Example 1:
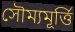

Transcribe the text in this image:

সৌম্যমূর্ত্তি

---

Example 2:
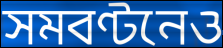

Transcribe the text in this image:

সমবণ্টনেও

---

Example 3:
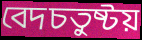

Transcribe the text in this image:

বেদচতুষ্টয়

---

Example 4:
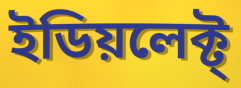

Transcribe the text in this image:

ইডিয়লেক্ট্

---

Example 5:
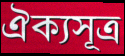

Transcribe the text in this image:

ঐক্যসূত্র